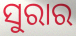
ସୁରାର